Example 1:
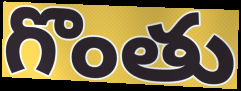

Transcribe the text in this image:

గొంతు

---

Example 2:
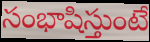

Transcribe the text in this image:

సంభాషిస్తుంటే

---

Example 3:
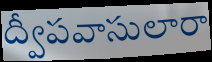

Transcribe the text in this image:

ద్వీపవాసులారా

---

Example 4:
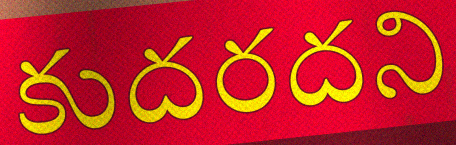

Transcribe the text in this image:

కుదరదని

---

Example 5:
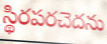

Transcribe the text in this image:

స్థిరపరచెదను